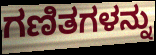
ಗಣಿತಗಳನ್ನು